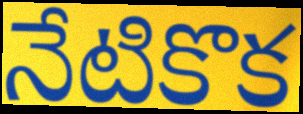
నేటికొక